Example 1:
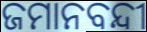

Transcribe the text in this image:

ଜମାନବନ୍ଦୀ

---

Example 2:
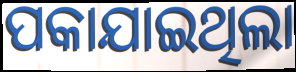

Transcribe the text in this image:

ପକାଯାଇଥିଲା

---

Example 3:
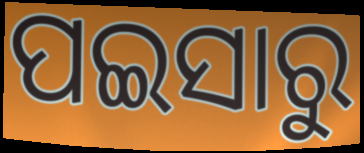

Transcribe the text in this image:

ପଇସାରୁ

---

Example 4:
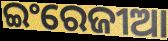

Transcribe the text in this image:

ଇଂରେଜୀଆ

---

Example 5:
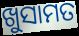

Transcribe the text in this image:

ଖୁସାମତ